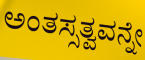
ಅಂತಸ್ಸತ್ವವನ್ನೇ